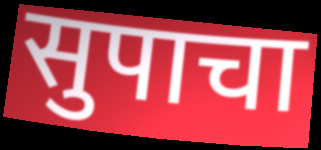
सुपाचा